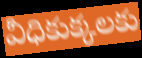
వీధికుక్కలకు